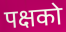
पक्षको